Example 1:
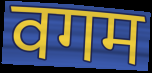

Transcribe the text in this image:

वगम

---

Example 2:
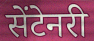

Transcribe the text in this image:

सेंटेनरी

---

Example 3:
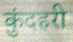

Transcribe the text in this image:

कुंदहरी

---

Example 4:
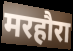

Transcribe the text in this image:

मरहौरा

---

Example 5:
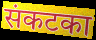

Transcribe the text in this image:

संकटका